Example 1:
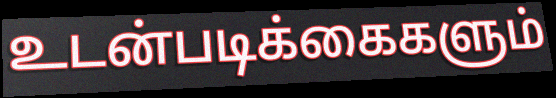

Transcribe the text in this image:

உடன்படிக்கைகளும்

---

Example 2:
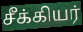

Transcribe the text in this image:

சீக்கியர்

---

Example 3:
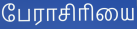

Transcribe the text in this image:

பேராசிரியை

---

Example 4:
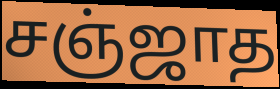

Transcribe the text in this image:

சஞ்ஜாத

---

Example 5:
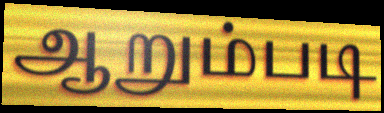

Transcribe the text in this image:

ஆறும்படி